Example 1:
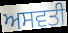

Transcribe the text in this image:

ਅਸਵਤੀ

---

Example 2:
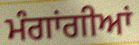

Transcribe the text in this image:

ਮੰਗਾਂਗੀਆਂ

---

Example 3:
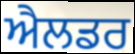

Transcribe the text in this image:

ਐਲਡਰ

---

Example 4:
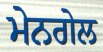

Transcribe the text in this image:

ਮੇਨਗੇਲ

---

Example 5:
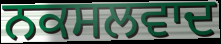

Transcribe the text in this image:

ਨਕਸਲਵਾਦ